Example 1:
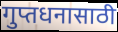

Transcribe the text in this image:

गुप्तधनासाठी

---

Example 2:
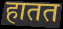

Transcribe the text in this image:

हातत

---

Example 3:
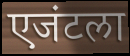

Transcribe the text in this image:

एजंटला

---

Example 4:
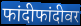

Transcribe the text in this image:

फांदीफांदीवर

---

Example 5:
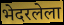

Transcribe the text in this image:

भेदरलेला